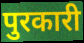
पुरकारी